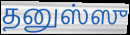
தனுஸ்ஸு